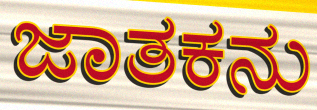
ಜಾತಕನು